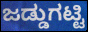
ಜಡ್ಡುಗಟ್ಟಿ